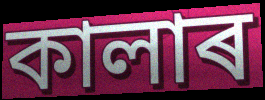
কালাৰ